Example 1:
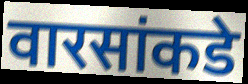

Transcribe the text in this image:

वारसांकडे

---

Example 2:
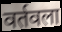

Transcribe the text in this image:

वर्तवला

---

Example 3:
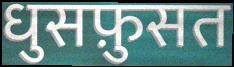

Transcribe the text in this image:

धुसफ़ुसत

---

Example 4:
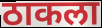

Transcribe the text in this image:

ठाकला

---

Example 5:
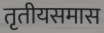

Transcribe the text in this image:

तृतीयसमास